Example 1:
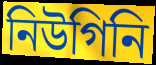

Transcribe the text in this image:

নিউগিনি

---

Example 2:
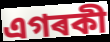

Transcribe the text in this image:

এগৰকী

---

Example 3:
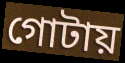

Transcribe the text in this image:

গোটায়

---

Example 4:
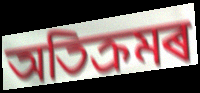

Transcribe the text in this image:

অতিক্ৰমৰ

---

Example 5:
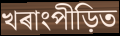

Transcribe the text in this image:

খৰাংপীড়িত